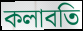
কলাবতি